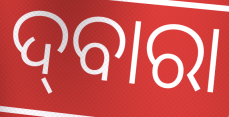
ଦ୍‌ବାରା